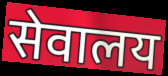
सेवालय